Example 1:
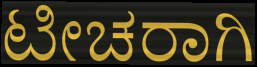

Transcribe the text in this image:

ಟೀಚರಾಗಿ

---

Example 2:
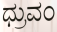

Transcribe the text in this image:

ಧ್ರುವಂ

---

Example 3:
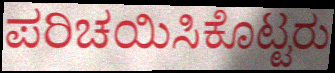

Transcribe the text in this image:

ಪರಿಚಯಿಸಿಕೊಟ್ಟರು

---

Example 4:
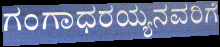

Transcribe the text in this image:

ಗಂಗಾಧರಯ್ಯನವರಿಗೆ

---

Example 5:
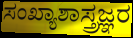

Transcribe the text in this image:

ಸಂಖ್ಯಾಶಾಸ್ತ್ರಜ್ಞರ